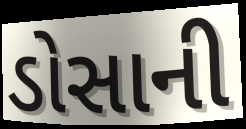
ડોસાની